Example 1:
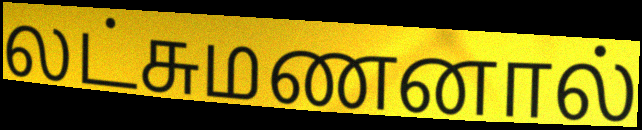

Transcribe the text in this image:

லட்சுமணனால்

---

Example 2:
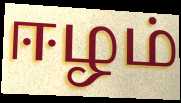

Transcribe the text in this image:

ஈழம்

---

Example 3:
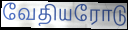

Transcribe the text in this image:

வேதியரோடு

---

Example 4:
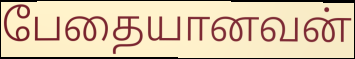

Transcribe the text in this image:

பேதையானவன்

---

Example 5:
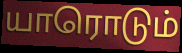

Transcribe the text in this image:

யாரொடும்